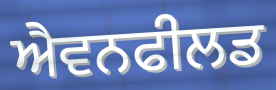
ਐਵਨਫੀਲਡ